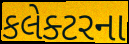
કલેક્ટરના